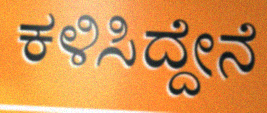
ಕಳಿಸಿದ್ದೇನೆ